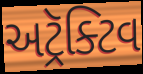
અટ્રૅક્ટિવ